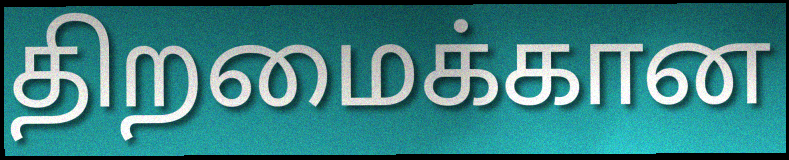
திறமைக்கான